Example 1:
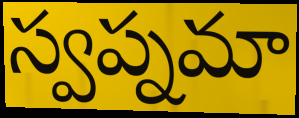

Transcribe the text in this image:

స్వప్నమా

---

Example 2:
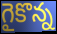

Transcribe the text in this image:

గైకొన్న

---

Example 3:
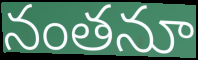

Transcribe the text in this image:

నంతనూ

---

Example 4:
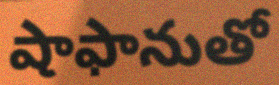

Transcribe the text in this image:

షాఫానుతో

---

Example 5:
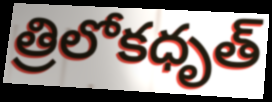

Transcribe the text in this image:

త్రిలోకధృత్